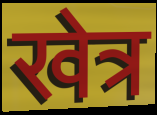
खेत्र